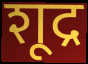
शूद्र